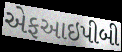
એફઆઇપીબી